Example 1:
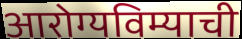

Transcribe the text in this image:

आरोग्यविम्याची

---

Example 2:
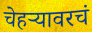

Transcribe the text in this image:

चेहऱ्यावरचं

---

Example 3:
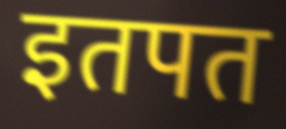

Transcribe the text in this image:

इतपत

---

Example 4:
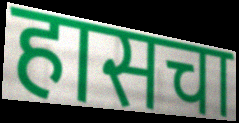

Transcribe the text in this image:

हासचा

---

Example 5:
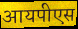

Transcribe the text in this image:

आयपीएस